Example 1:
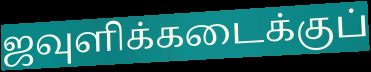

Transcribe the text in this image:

ஜவுளிக்கடைக்குப்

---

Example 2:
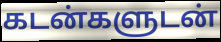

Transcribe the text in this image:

கடன்களுடன்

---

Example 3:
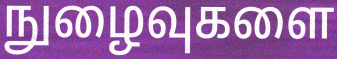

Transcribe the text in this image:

நுழைவுகளை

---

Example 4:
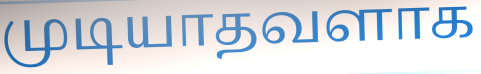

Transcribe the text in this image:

முடியாதவளாக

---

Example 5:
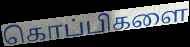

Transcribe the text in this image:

கொப்பிகளை